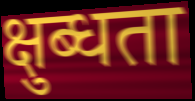
क्षुब्धता